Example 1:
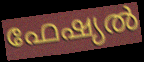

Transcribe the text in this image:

ഫേഷ്യൽ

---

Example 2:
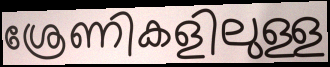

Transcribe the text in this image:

ശ്രേണികളിലുള്ള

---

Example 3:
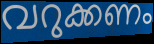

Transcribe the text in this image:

വറുക്കണം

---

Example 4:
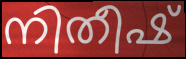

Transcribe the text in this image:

നിതീഷ്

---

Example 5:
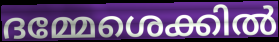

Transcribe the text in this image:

ദമ്മേശെക്കിൽ